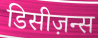
डिसीज़न्स